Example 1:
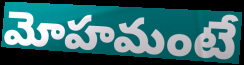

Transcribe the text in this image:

మోహమంటే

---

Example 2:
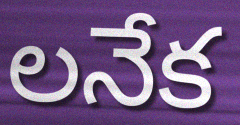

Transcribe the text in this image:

లనేక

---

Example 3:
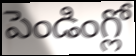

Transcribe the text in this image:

పెండింగ్లో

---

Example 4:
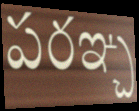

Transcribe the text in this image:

పరఞ్చ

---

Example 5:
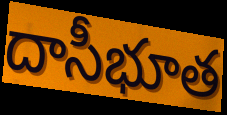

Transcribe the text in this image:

దాసీభూత